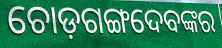
ଚୋଡ଼ଗଙ୍ଗଦେବଙ୍କର